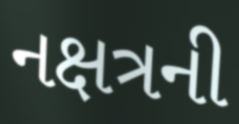
નક્ષત્રની